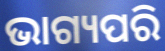
ଭାଗ୍ୟପରି